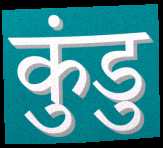
कुंडु